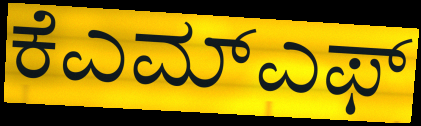
ಕೆಎಮ್ಎಫ್